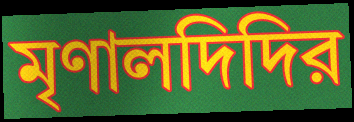
মৃণালদিদির